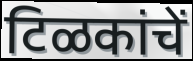
टिळकांचें